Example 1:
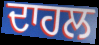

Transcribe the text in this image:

ਦਾਹਲ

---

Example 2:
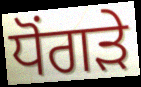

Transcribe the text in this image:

ਧੋਂਗੜੇ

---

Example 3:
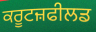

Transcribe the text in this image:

ਕਰੂਟਜ਼ਫੀਲਡ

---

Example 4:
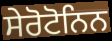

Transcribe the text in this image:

ਸੇਰੋਟੋਨਿਨ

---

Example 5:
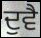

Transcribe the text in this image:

ਦੁਵੈ